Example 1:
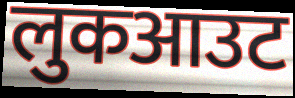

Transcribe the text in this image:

लुकआउट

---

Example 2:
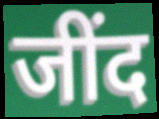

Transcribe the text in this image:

जींद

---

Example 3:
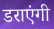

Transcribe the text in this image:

डराएंगी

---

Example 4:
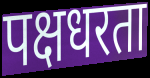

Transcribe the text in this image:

पक्षधरता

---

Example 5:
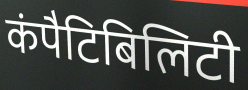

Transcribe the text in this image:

कंपैटिबिलिटी